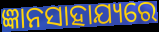
ଜ୍ଞାନସାହାଯ୍ୟରେ